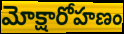
మోక్షారోహణం